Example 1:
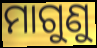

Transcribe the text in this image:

ମାଗୁଣୁ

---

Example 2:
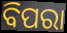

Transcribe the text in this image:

ବିପରା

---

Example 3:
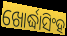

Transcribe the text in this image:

ଖୋର୍ଦ୍ଧାସିଂହ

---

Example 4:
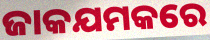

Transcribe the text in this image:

ଜାକଯମକରେ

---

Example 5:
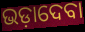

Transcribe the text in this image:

ଭଡ଼ାଦେବା